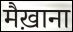
मैख़ाना